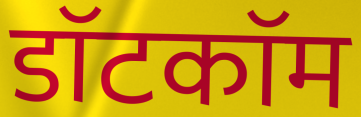
डॉटकॉम